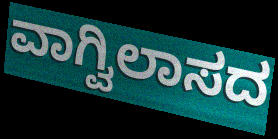
ವಾಗ್ವಿಲಾಸದ